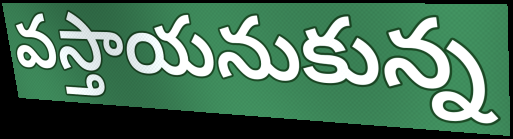
వస్తాయనుకున్న